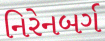
નિરેનબર્ગ